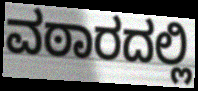
ವಠಾರದಲ್ಲಿ